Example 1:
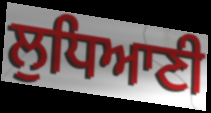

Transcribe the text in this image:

ਲੁਧਿਆਣੀ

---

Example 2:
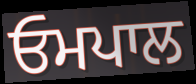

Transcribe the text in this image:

ਓਮਪਾਲ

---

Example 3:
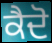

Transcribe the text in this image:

ਕੈਦੋ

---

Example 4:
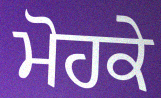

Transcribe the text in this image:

ਮੋਹਕੇ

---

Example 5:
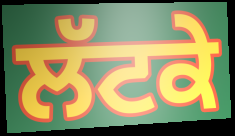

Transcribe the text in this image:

ਲੱਟਕੇ